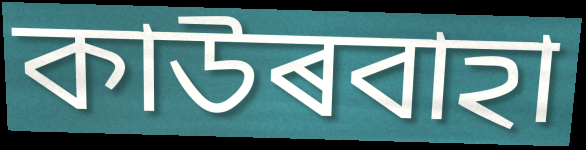
কাউৰবাহা